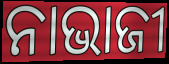
ନାଭାଜୀ